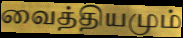
வைத்தியமும்